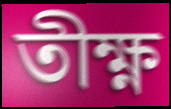
তীক্ষ্ণ